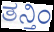
ತನ್ತಿಂ